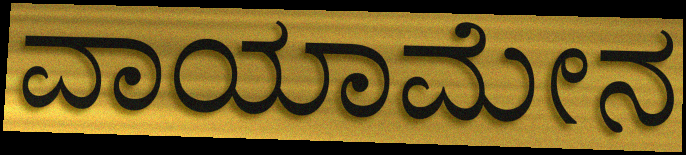
ವಾಯಾಮೇನ